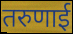
तरुणाई